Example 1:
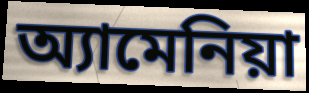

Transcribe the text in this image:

অ্যামেনিয়া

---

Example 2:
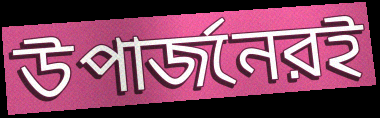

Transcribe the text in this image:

উপার্জনেরই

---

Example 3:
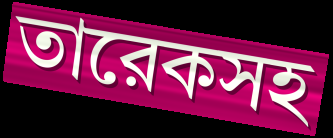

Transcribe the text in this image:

তারেকসহ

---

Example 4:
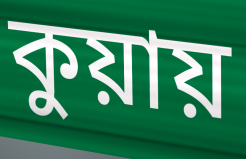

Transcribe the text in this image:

কুয়ায়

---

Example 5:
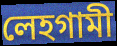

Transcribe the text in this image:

লেহগামী